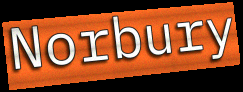
Norbury